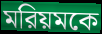
মরিয়মকে